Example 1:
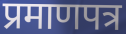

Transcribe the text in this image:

प्रमाणपत्र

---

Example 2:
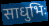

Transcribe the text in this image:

साधुभिः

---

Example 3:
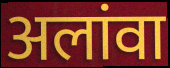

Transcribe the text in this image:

अलांवा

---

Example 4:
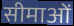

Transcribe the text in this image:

सीमाओं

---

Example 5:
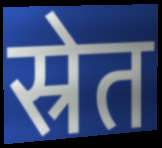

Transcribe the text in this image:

स्रेत